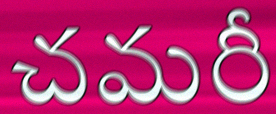
చమరీ